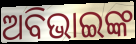
ଅବିଭାଇଙ୍କ